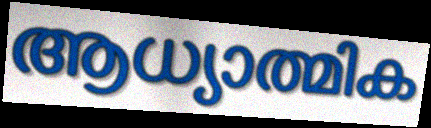
ആധ്യാത്മിക